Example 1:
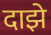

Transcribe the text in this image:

दाझे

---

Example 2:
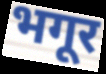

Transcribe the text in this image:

भगूर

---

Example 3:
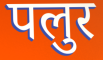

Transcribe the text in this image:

पलुर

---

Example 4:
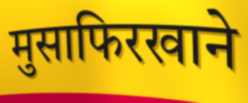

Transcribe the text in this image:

मुसाफिरखाने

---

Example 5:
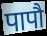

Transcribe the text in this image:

पापौ